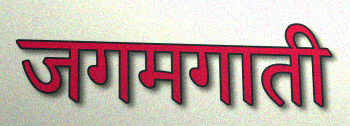
जगमगाती